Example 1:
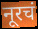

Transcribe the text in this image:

नूरचं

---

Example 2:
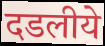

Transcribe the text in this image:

दडलीये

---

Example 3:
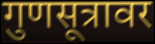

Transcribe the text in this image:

गुणसूत्रावर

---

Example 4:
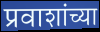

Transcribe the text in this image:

प्रवाशांच्या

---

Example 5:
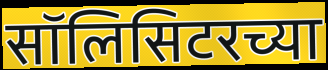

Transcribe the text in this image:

सॉलिसिटरच्या